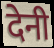
देनी